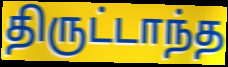
திருட்டாந்த